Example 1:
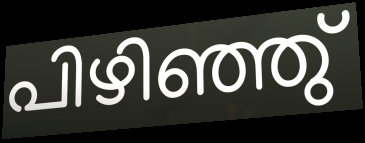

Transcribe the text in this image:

പിഴിഞ്ഞു്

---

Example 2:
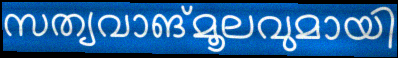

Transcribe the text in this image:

സത്യവാങ്മൂലവുമായി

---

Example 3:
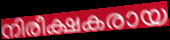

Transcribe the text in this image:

നിരീക്ഷകരായ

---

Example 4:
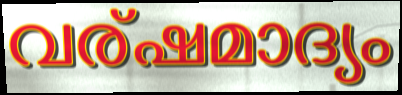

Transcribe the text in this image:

വര്ഷമാദ്യം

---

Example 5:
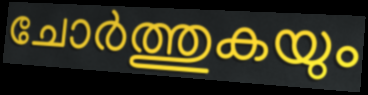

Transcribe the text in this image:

ചോർത്തുകയും